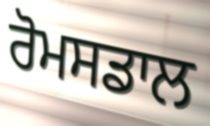
ਰੋਮਸਡਾਲ